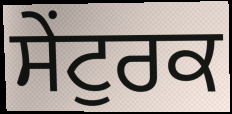
ਸੇਂਟੁਰਕ